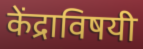
केंद्राविषयी